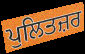
ਪੁਲਿਤਜ਼ਰ